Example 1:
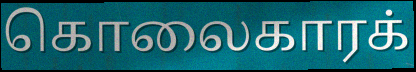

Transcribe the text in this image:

கொலைகாரக்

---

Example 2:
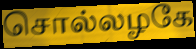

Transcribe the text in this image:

சொல்லழகே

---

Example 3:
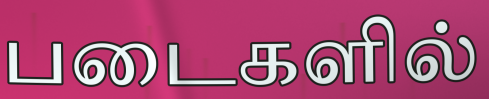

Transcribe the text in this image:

படைகளில்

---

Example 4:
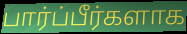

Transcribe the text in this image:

பார்ப்பீர்களாக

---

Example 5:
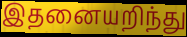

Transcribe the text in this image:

இதனையறிந்து